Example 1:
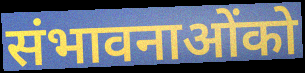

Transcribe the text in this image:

संभावनाओंको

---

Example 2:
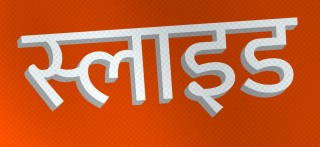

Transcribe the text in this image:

स्‍लाइड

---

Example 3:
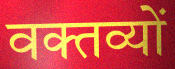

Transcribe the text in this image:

वक्तव्यों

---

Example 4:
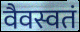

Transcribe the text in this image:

वैवस्वतं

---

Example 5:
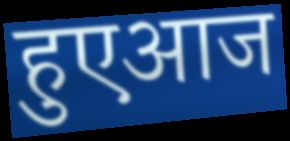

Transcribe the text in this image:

हुएआज